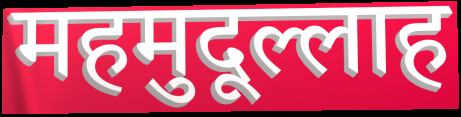
महमुदूल्लाह